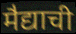
मैद्याची